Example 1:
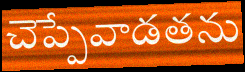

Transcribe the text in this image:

చెప్పేవాడతను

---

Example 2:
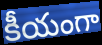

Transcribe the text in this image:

కీయంగా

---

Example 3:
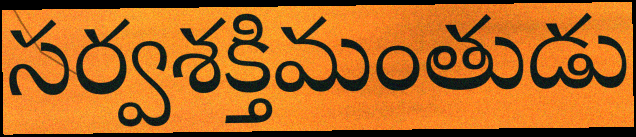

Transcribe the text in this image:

సర్వశక్తిమంతుడు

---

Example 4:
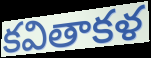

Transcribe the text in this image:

కవితాకళ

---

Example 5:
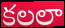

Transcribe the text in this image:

కలలా